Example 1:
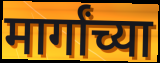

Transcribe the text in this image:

मार्गांच्या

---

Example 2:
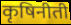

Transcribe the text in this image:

कृषिनीती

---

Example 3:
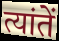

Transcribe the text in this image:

त्यांतें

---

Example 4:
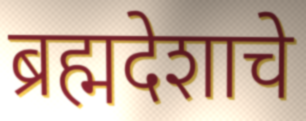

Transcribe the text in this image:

ब्रह्मदेशाचे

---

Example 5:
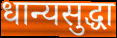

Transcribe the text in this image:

धान्यसुद्धा